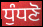
ਧੁੰਧਣੋ